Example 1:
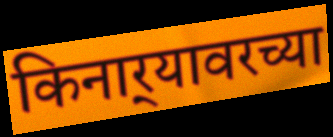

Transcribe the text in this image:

किनार्यावरच्या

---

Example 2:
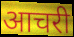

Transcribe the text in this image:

आचरी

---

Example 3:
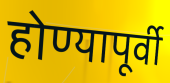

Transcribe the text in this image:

होण्यापूर्वी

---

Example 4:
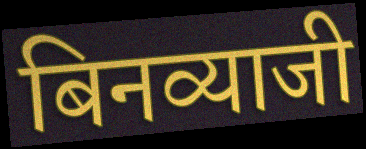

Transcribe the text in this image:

बिनव्याजी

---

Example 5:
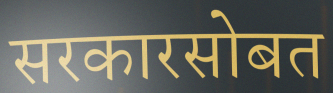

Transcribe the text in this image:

सरकारसोबत